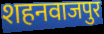
शहनवाजपुर